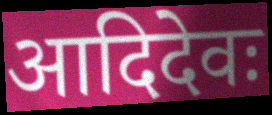
आदिदेवः